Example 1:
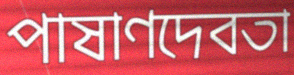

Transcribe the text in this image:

পাষাণদেবতা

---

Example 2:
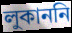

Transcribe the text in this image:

লুকাননি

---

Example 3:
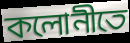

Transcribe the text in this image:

কলোনীতে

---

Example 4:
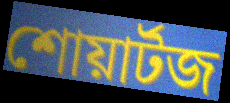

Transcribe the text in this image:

শোয়ার্টজ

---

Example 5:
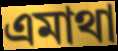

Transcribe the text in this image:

এমাথা